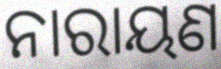
ନାରାୟଣ